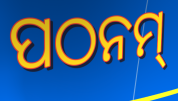
ପଠନମ୍